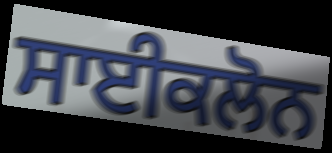
ਸਾਈਕਲੋਨ